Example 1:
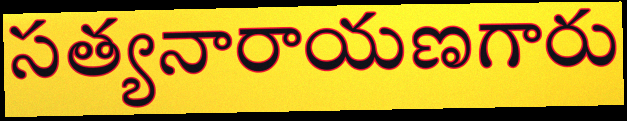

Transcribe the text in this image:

సత్యనారాయణగారు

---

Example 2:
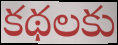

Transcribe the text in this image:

కథలకు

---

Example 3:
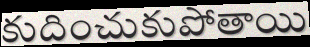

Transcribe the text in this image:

కుదించుకుపోతాయి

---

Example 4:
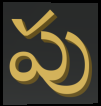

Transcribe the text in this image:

పు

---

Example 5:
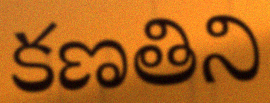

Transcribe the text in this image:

కణతిని